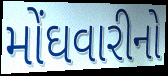
મોંઘવારીનો